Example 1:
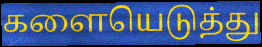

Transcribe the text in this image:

களையெடுத்து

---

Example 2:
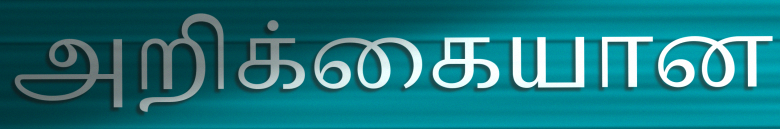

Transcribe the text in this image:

அறிக்கையான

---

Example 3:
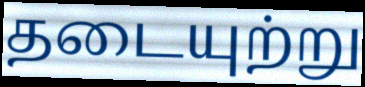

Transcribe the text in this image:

தடையுற்று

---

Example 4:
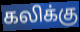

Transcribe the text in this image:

கலிக்கு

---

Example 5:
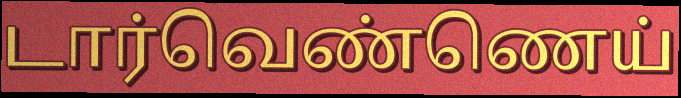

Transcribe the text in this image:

டார்வெண்ணெய்